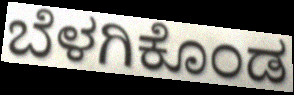
ಬೆಳಗಿಕೊಂಡ